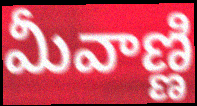
మీవాణ్ణి